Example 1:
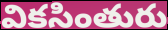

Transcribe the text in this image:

వికసింతురు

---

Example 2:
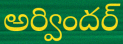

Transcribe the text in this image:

అర్విందర్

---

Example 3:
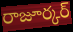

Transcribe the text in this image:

రాజూర్కర్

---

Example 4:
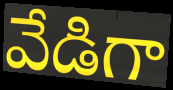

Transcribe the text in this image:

వేడిగా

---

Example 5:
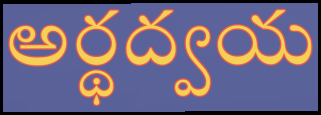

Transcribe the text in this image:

అర్థద్వయ